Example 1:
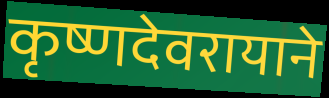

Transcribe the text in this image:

कृष्णदेवरायाने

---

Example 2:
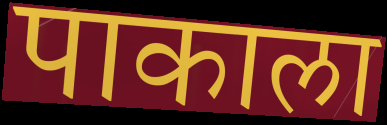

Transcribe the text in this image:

पाकाला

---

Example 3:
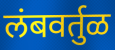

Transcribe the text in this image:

लंबवर्तुळ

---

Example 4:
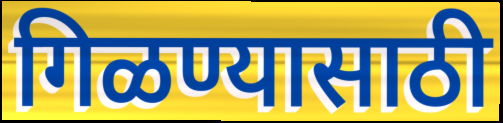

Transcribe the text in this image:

गिळण्यासाठी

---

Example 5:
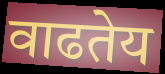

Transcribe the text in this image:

वाढतेय